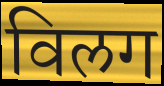
विलग